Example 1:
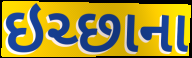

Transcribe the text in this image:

ઇચ્છાના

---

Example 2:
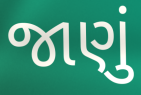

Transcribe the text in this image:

જાણું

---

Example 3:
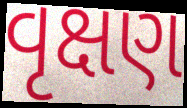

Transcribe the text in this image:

વૃક્ષણ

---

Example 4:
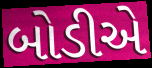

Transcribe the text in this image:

બોડીએ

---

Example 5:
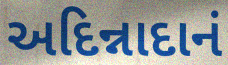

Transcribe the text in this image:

અદિન્નાદાનં